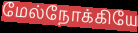
மேல்நோக்கியே